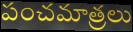
పంచమాత్రలు